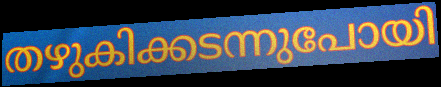
തഴുകിക്കടന്നുപോയി